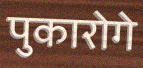
पुकारोगे